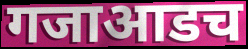
गजाआडच